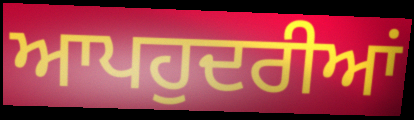
ਆਪਹੁਦਰੀਆਂ